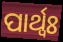
ପାର୍ଥ୍ବଃ